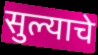
सुल्याचे